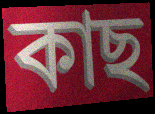
কাছ